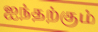
ஐந்தற்கும்